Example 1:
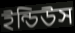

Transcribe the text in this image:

ইন্ডিউস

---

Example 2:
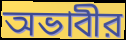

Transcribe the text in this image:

অভাবীর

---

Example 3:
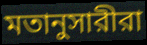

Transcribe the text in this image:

মতানুসারীরা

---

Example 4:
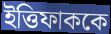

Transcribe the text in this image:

ইত্তিফাককে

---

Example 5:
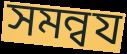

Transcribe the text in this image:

সমন্বয